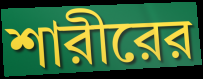
শারীরের